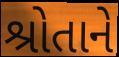
શ્રોતાને